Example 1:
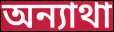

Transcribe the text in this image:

অন্যাথা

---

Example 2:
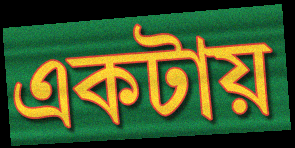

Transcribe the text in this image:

একটায়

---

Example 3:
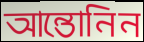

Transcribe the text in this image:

আন্তোনিন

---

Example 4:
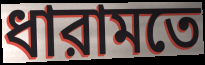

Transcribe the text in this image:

ধারামতে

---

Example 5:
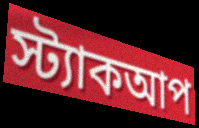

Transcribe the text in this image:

স্ট্যাকআপ